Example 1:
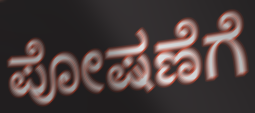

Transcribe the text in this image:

ಪೋಷಣೆಗೆ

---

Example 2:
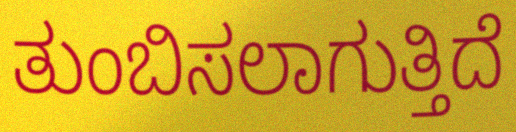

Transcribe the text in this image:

ತುಂಬಿಸಲಾಗುತ್ತಿದೆ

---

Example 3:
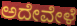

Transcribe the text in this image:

ಅದೇವೇಳೆ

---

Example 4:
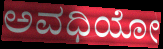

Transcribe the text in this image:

ಅವಧಿಯೋ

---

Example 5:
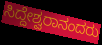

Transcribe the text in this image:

ಸಿದ್ದೇಶ್ವರಾನಂದರು